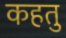
कहतु